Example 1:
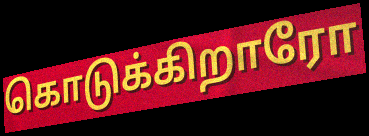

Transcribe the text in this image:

கொடுக்கிறாரோ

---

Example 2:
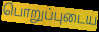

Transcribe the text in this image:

பொறுப்புடைய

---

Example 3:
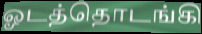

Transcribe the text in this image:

ஓடத்தொடங்கி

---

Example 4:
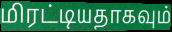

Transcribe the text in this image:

மிரட்டியதாகவும்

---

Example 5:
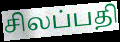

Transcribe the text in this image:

சிலப்பதி